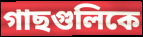
গাছগুলিকে